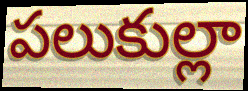
పలుకుల్లా